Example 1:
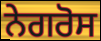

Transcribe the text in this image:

ਨੇਗਰੋਸ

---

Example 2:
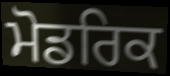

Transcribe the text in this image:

ਮੋਡਰਿਕ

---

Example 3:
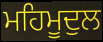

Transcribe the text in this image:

ਮਹਿਮੂਦੁਲ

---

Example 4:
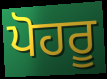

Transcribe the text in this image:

ਪੋਹਰੂ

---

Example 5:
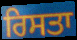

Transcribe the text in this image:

ਰਿਸਤਾ